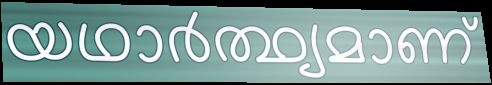
യഥാർത്ഥ്യമാണ്